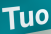
Tuo